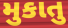
મુકાતુ